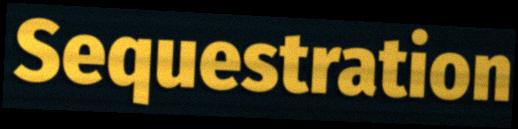
Sequestration